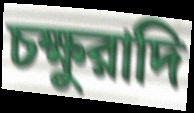
চক্ষুরাদি